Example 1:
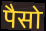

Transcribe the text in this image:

पैसो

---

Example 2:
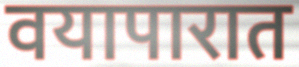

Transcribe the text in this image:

वयापारात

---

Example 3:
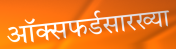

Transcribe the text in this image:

ऑक्सफर्डसारख्या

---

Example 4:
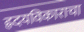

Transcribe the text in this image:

ह्रदयविकाराचा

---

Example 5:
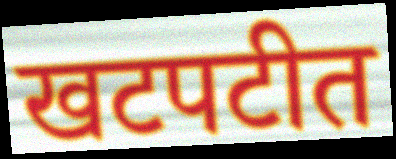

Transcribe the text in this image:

खटपटीत